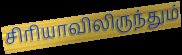
சிரியாவிலிருந்தும்